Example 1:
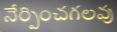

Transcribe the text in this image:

నేర్పించగలవు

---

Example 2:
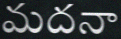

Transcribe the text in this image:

మదనా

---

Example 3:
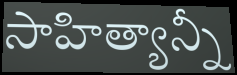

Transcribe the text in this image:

సాహిత్యాన్నీ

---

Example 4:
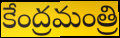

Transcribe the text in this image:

కేంద్రమంత్రి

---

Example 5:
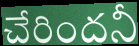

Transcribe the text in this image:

చేరిందనీ